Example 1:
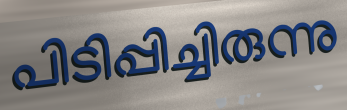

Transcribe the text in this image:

പിടിപ്പിച്ചിരുന്നു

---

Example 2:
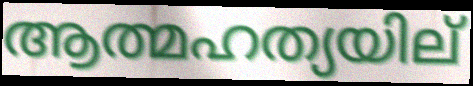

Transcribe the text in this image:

ആത്മഹത്യയില്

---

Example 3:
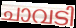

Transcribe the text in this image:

ചാവടി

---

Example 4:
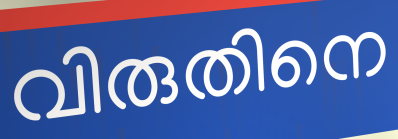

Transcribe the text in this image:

വിരുതിനെ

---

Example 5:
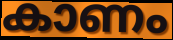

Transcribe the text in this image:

കാണം